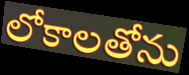
లోకాలతోను